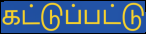
கட்டுப்பட்டு